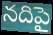
నదిపై